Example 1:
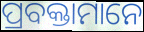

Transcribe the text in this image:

ପ୍ରବକ୍ତାମାନେ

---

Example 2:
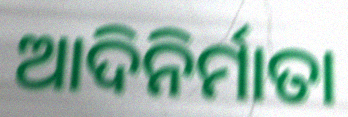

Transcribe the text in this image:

ଆଦିନିର୍ମାତା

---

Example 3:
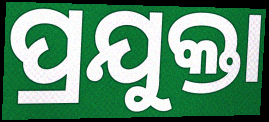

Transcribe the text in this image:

ପ୍ରଯୁକ୍ତା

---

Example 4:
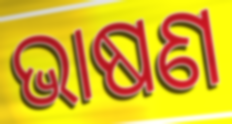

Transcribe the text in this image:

ଭାଷଣ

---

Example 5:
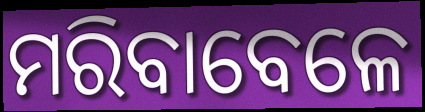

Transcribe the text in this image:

ମରିବାବେଳେ